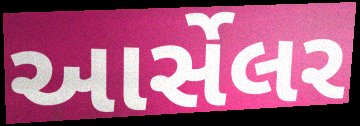
આર્સેલર